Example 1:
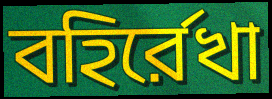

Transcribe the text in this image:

বহির্রেখা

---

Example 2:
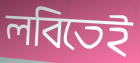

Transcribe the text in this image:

লবিতেই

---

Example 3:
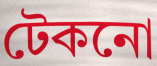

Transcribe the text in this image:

টেকনো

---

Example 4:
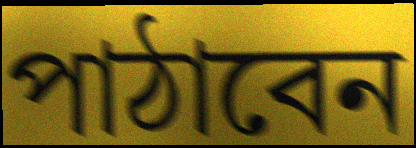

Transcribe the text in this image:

পাঠাবেন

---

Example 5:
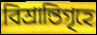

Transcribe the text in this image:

বিশ্রান্তিগৃহে